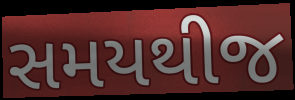
સમયથીજ